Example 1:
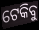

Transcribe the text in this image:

ଟେକିବୁ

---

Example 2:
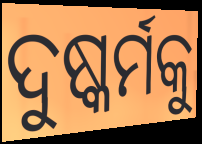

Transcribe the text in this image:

ଦୁଷ୍କର୍ମକୁ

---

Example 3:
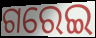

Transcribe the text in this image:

ଗରେଇ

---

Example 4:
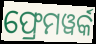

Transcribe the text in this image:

ଫ୍ରେମୱର୍କ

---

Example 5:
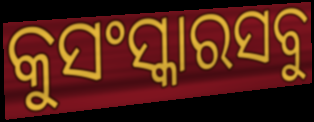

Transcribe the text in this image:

କୁସଂସ୍କାରସବୁ